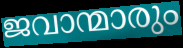
ജവാന്മാരും